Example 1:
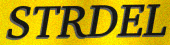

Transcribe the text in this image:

STRDEL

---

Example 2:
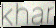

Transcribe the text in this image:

khar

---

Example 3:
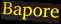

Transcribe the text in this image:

Bapore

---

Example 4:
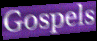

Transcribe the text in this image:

Gospels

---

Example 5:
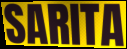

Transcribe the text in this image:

SARITA